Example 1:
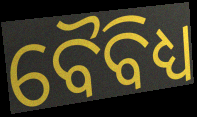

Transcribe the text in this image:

ବୈବିଧ୍ୟ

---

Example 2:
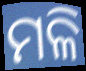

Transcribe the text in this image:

ମଳି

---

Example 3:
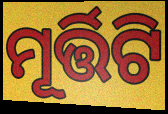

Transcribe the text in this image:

ମୂର୍ତ୍ତିଟି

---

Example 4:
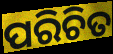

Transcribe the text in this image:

ପରିଚିତ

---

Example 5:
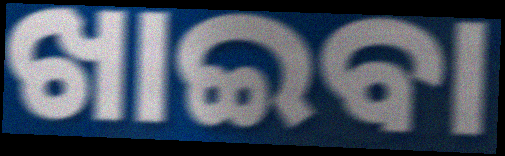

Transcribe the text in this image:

ଖାଇବା